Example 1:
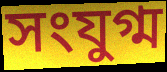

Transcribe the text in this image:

সংযুগ্ম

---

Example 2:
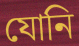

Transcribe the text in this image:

যোনি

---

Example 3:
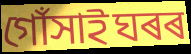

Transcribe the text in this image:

গোঁসাইঘৰৰ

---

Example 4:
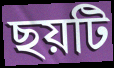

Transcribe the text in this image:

ছয়টি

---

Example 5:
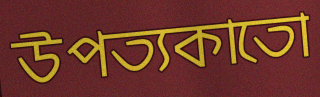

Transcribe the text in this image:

উপত্যকাতো